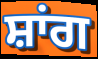
ਸ਼ਾਂਗ